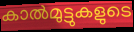
കാൽമുട്ടുകളുടെ